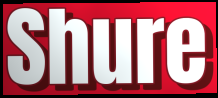
Shure